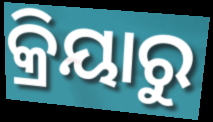
କ୍ରିୟାରୁ